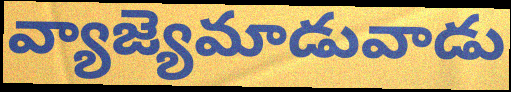
వ్యాజ్యెమాడువాడు